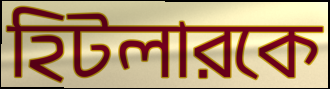
হিটলারকে